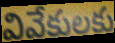
వివేకులకు